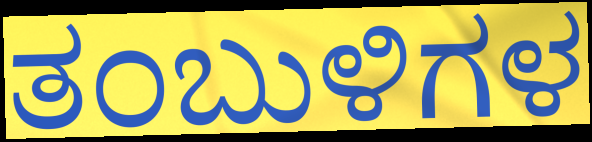
ತಂಬುಳಿಗಳ